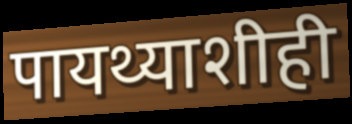
पायथ्याशीही